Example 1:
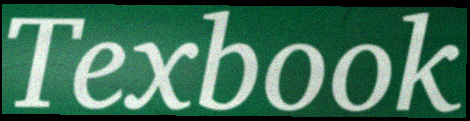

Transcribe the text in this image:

Texbook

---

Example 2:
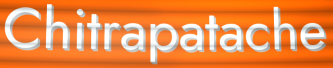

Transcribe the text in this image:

Chitrapatache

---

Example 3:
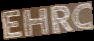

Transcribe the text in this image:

EHRC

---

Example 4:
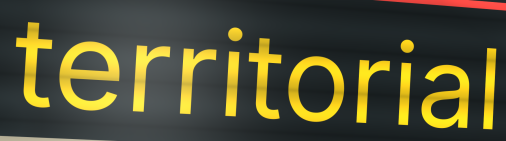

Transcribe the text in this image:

territorial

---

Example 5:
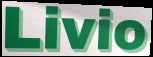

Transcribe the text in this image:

Livio